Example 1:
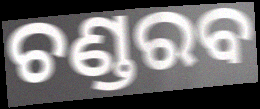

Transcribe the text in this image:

ଚଣ୍ଡରବ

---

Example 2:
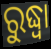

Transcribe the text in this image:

ରୁଦ୍ଧ୍ୱା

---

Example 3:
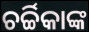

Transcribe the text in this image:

ଚର୍ଚ୍ଚିକାଙ୍କ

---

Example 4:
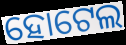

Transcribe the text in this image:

ହୋଟେଲ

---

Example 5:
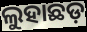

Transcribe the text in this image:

ଲୁହାଛଡ଼